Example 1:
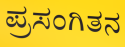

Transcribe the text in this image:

ಪ್ರಸಂಗಿತನ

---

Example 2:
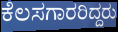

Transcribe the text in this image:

ಕೆಲಸಗಾರರಿದ್ದರು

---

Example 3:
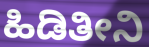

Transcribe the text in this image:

ಹಿಡಿತೀನಿ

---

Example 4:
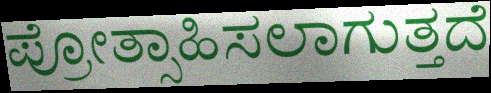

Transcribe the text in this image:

ಪ್ರೋತ್ಸಾಹಿಸಲಾಗುತ್ತದೆ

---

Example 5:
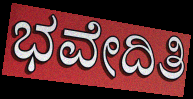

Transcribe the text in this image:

ಭವೇದಿತಿ